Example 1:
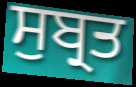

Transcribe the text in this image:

ਸੁਬ੍ਰਤ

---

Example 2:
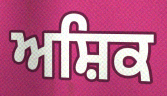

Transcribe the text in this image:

ਅਸ਼ਿਕ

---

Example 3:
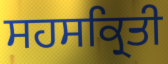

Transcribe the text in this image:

ਸਹਸਕ੍ਰਿਤੀ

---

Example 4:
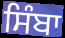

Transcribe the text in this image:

ਸਿੰਬਾ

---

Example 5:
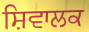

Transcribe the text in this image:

ਸ਼ਿਵਾਲਕ